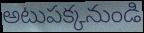
అటుపక్కనుండి